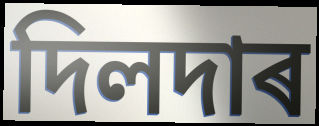
দিলদাৰ